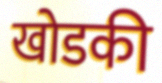
खोडकी